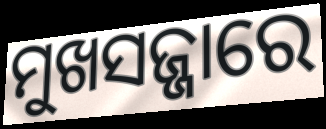
ମୁଖସଜ୍ଜାରେ